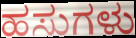
ಹಸುಗಳು